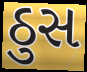
ઠુસ